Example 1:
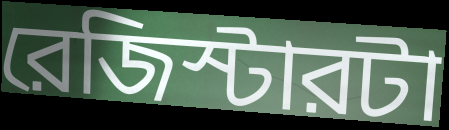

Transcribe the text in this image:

রেজিস্টারটা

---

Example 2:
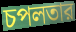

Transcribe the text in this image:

চপলতার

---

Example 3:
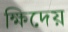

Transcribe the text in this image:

ক্ষিদেয়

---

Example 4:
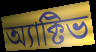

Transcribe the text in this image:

অ্যাক্টিভ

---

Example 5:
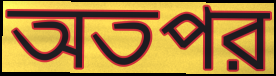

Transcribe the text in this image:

অতপর